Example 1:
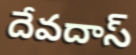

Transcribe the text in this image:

దేవదాస్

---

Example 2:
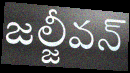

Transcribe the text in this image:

జల్జీవన్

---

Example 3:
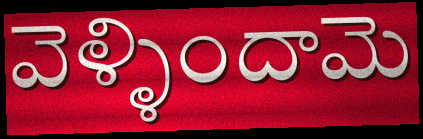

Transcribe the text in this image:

వెళ్ళిందామె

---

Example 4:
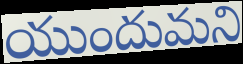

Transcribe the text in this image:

యుందుమని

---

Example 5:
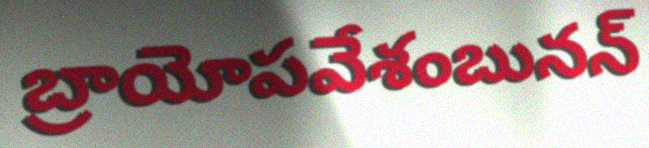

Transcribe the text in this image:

బ్రాయోపవేశంబునన్